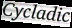
Cycladic